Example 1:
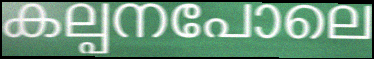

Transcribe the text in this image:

കല്പനപോലെ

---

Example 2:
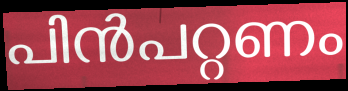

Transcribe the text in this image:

പിൻപറ്റണം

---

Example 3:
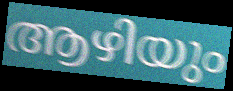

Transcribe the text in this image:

ആഴിയും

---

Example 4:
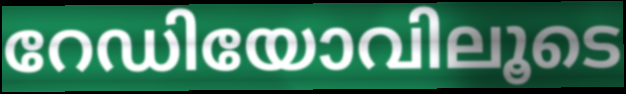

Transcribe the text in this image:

റേഡിയോവിലൂടെ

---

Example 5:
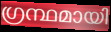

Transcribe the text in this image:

ഗ്രന്ഥമായി